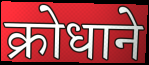
क्रोधाने